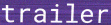
trailer